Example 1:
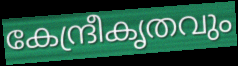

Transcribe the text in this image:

കേന്ദ്രീകൃതവും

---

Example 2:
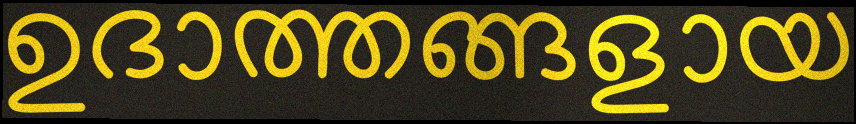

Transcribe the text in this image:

ഉദാത്തങ്ങളായ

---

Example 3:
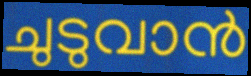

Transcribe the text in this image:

ചുടുവാൻ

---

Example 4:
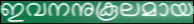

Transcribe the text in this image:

ഇവനനുകൂലമായ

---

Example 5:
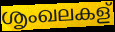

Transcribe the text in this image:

ശൃംഖലകള്